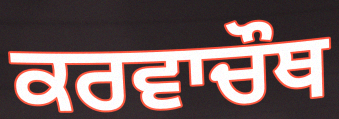
ਕਰਵਾਚੌਥ